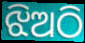
ଝିଅଠି